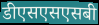
डीएसएसएसबी